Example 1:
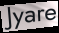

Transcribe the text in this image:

Jyare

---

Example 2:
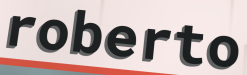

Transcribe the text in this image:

roberto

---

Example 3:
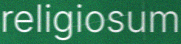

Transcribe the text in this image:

religiosum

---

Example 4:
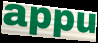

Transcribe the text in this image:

appu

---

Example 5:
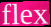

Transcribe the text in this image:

flex